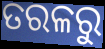
ତରଳରୁ